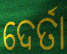
ଦେର୍ତା